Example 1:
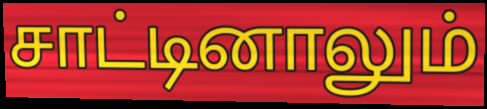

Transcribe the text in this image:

சாட்டினாலும்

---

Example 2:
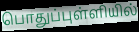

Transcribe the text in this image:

பொதுப்புள்ளியில்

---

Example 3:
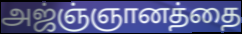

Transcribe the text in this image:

அஜ்ஞ்ஞானத்தை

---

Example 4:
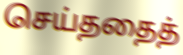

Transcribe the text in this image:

செய்ததைத்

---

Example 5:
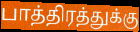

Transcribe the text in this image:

பாத்திரத்துக்கு